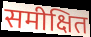
समीक्षित